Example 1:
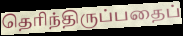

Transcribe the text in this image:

தெரிந்திருப்பதைப்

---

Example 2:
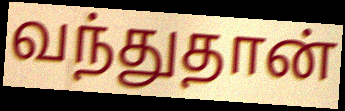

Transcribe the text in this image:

வந்துதான்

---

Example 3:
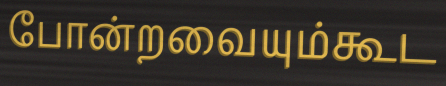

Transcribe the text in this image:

போன்றவையும்கூட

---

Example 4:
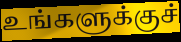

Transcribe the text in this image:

உங்களுக்குச்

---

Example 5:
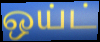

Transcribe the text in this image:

ஒய்ட்